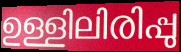
ഉള്ളിലിരിപ്പു